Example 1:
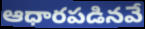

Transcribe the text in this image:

ఆధారపడినవే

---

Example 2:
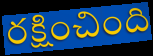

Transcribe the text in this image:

రక్షించింది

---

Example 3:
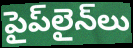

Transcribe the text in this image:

పైప్‌లైన్‌లు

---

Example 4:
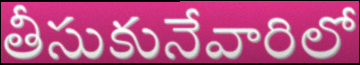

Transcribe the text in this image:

తీసుకునేవారిలో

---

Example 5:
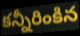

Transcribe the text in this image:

కన్నీరింకిన